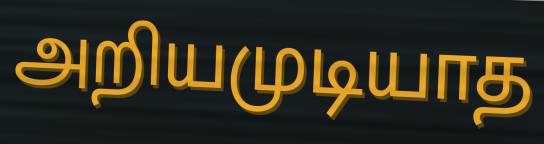
அறியமுடியாத